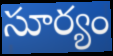
సూర్యం